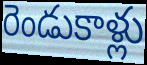
రెండుకాళ్లు